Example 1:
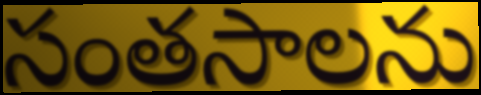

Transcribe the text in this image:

సంతసాలను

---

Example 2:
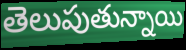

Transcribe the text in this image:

తెలుపుతున్నాయి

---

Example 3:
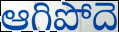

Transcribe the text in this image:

ఆగిపోదె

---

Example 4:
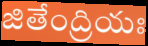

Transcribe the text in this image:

జితేంద్రియః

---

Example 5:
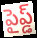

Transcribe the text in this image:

పైప్డ్